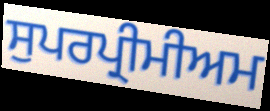
ਸੁਪਰਪ੍ਰੀਮੀਅਮ